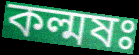
কল্মষঃ